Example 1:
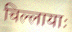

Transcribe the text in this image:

चिल्लायाः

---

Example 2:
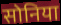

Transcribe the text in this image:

सोनिया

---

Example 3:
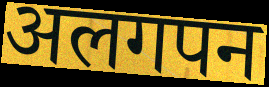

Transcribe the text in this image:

अलगपन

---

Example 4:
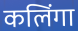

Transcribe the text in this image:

कलिंगा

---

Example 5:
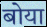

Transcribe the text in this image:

बोया